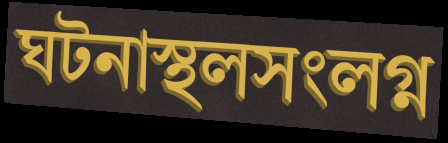
ঘটনাস্থলসংলগ্ন